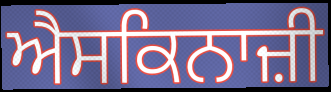
ਐਸਕਿਨਾਜ਼ੀ